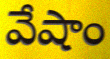
వేషాం